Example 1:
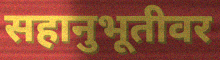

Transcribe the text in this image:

सहानुभूतीवर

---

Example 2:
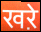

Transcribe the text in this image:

खऱे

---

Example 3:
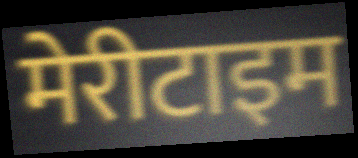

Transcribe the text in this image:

मेरीटाइम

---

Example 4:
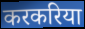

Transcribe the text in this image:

करकरिया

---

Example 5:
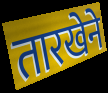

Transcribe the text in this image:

तारखेने